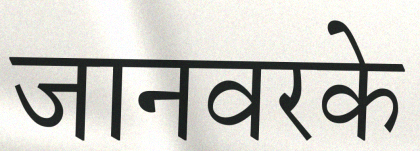
जानवरके